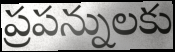
ప్రపన్నులకు